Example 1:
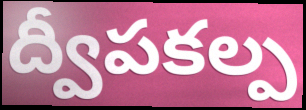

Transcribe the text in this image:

ద్వీపకల్ప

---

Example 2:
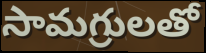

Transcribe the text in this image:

సామగ్రులతో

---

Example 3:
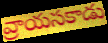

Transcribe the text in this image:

వ్రాయసకాడు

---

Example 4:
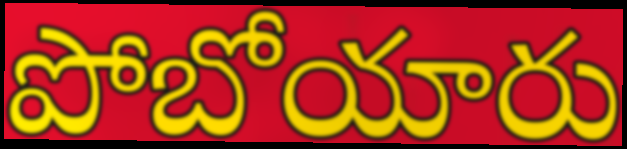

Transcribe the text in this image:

పోబోయారు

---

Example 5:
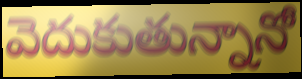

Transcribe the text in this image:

వెదుకుతున్నానో